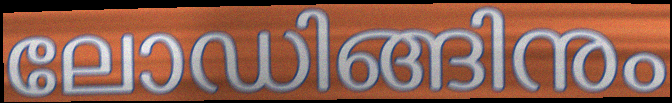
ലോഡിങ്ങിനും